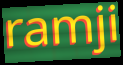
ramji